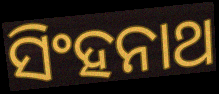
ସିଂହନାଥ